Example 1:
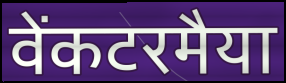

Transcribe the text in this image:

वेंकटरमैया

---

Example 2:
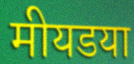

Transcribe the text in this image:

मीयडया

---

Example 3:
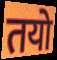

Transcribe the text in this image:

तयो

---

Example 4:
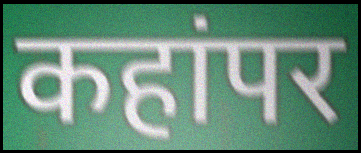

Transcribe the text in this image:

कहांपर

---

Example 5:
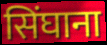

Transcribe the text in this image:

सिंघाना